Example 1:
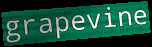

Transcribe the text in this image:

grapevine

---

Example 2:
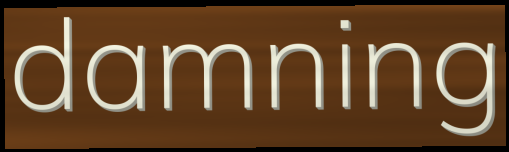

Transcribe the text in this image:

damning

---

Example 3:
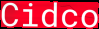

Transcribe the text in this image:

Cidco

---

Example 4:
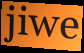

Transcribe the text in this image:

jiwe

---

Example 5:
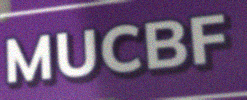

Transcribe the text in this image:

MUCBF